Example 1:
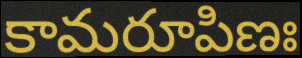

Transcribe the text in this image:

కామరూపిణః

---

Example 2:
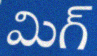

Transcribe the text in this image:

మిగ్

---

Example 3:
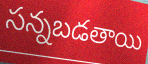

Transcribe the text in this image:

సన్నబడతాయి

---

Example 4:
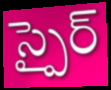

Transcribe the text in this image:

స్పైర్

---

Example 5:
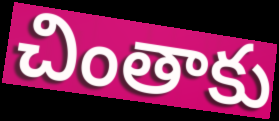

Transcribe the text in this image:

చింతాకు